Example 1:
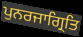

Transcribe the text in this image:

ਪੁਨਰਜਾਗ੍ਰਿਤਿ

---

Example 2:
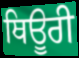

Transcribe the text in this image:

ਥਿਊਰੀ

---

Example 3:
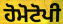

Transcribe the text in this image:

ਹੋਮੋਟੋਪੀ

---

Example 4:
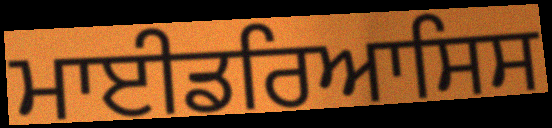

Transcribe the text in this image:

ਮਾਈਡਰਿਆਸਿਸ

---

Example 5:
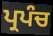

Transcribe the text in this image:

ਪ੍ਰਪੰਚ